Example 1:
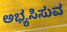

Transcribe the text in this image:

ಅಭ್ಯಸಿಸುವ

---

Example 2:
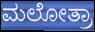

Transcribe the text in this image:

ಮಲೋತ್ರಾ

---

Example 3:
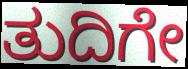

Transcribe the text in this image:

ತುದಿಗೇ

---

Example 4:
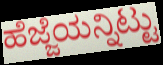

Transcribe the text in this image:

ಹೆಜ್ಜೆಯನ್ನಿಟ್ಟು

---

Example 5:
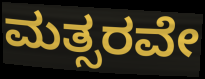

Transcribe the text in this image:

ಮತ್ಸರವೇ